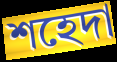
শহেদা